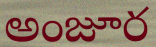
అంజూర